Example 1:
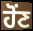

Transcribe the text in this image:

ਹੋਂਣ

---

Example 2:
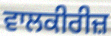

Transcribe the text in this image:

ਵਾਲਕੀਰੀਜ਼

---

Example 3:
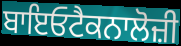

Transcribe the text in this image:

ਬਾਇਓਟੈਕਨਾਲੋਜ਼ੀ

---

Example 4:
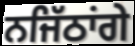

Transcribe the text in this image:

ਨਜਿੱਠਾਂਗੇ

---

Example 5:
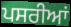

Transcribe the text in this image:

ਪਸਰੀਆਂ